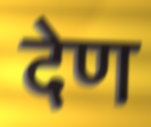
देण